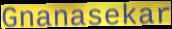
Gnanasekar